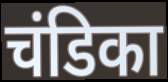
चंडिका